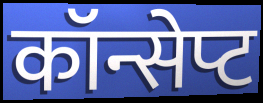
कॉन्‍सेप्‍ट